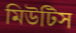
মিউটিস